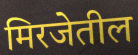
मिरजेतील